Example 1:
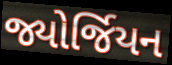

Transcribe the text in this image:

જ્યોર્જિયન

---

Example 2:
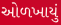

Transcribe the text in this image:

ઓળખાયું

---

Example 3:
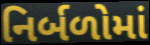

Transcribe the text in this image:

નિર્બળોમાં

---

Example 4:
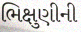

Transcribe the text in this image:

ભિક્ષુણીની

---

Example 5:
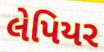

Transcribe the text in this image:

લેપિયર